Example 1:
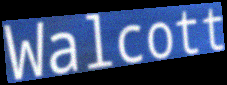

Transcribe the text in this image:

Walcott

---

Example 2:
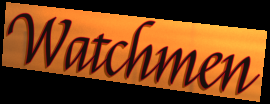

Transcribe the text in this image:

Watchmen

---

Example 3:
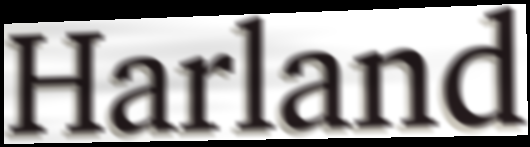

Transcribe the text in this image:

Harland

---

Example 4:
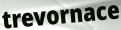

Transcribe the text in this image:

trevornace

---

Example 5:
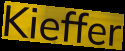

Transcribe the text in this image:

Kieffer